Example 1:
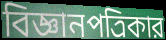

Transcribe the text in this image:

বিজ্ঞানপত্রিকার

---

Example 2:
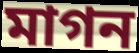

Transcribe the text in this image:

মাগন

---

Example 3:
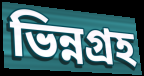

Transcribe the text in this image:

ভিন্নগ্রহ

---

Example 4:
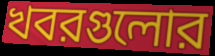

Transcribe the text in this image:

খবরগুলোর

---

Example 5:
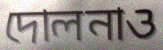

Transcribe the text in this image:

দোলনাও